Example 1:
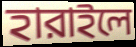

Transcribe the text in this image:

হারাইলে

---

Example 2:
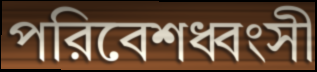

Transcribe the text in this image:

পরিবেশধ্বংসী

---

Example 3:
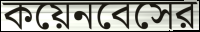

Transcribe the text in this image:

কয়েনবেসের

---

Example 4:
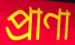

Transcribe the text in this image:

প্রাণা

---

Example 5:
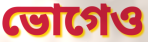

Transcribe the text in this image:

ভোগেও